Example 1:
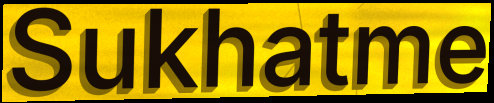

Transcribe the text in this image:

Sukhatme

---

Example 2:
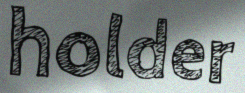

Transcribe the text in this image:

holder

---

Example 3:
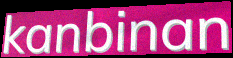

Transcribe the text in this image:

kanbinan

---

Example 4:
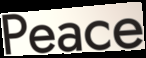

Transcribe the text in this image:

Peace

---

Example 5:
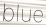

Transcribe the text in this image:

blue